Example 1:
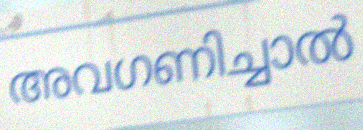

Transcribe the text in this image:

അവഗണിച്ചാൽ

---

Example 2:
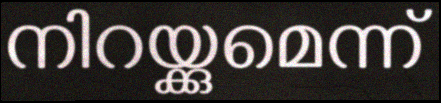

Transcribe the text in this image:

നിറയ്ക്കുമെന്ന്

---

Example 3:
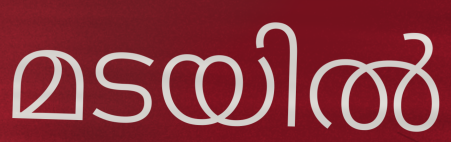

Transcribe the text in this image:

മടയിൽ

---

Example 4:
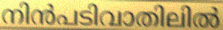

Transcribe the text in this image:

നിൻപടിവാതിലിൽ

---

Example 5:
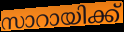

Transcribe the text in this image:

സാറായിക്ക്